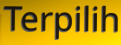
Terpilih